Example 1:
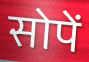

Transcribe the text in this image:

सोपें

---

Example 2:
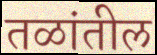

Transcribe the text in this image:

तळांतील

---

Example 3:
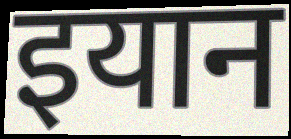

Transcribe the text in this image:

इयान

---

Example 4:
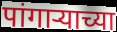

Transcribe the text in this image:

पांगार्‍याच्या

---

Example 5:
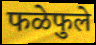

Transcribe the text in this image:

फळेफुले